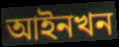
আইনখন